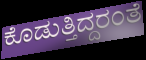
ಕೊಡುತ್ತಿದ್ದರಂತೆ